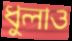
ধুলাও